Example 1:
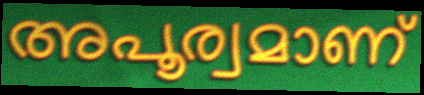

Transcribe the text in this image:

അപൂര്വമാണ്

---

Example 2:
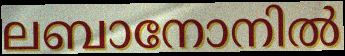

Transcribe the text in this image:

ലബാനോനിൽ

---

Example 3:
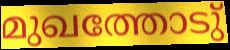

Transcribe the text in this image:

മുഖത്തോടു്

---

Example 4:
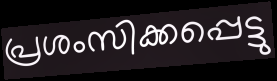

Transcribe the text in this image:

പ്രശംസിക്കപ്പെട്ടു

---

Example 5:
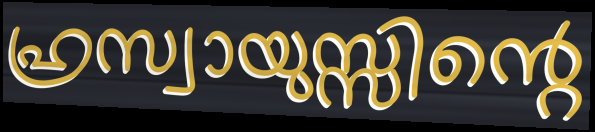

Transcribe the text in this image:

ഹ്രസ്വായുസ്സിന്റെ